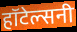
हॉटेल्सनी